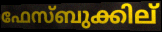
ഫേസ്ബുക്കില്